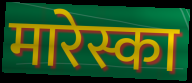
मारेस्का